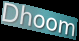
Dhoom